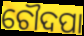
ଚୌଦପା